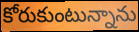
కోరుకుంటున్నాను